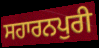
ਸਹਾਰਨਪੁਰੀ